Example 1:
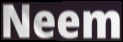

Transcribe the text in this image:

Neem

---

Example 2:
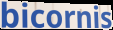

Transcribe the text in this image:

bicornis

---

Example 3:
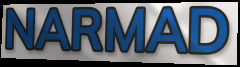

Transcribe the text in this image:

NARMAD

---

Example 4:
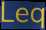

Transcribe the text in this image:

Leq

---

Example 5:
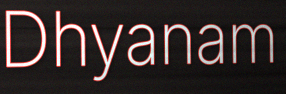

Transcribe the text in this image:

Dhyanam